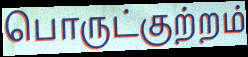
பொருட்குற்றம்